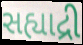
સહ્યાદ્રી